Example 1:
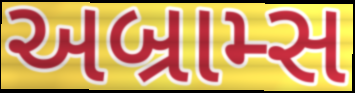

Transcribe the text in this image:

અબ્રામ્સ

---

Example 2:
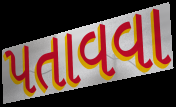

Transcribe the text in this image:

પતાવવા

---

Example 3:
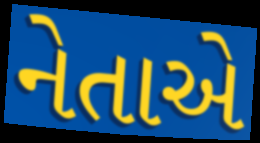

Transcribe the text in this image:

નેતાએ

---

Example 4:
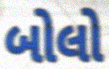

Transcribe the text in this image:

બોલો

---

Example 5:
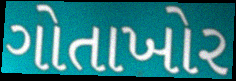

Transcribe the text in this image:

ગોતાખોર